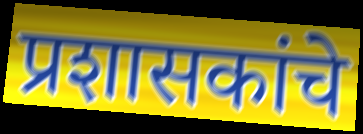
प्रशासकांचे